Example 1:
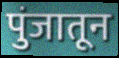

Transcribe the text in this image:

पुंजातून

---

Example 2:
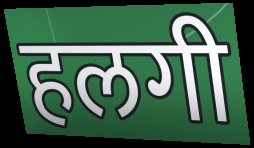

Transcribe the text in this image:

हलगी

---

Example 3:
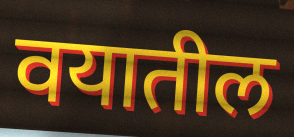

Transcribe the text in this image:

वयातील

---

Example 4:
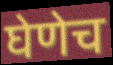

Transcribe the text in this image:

घेणेच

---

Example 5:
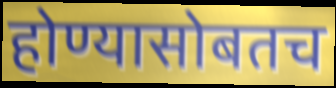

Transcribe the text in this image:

होण्यासोबतच